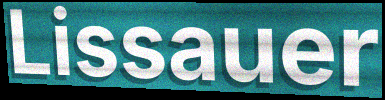
Lissauer